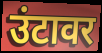
उंटावर